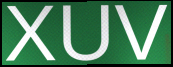
XUV